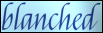
blanched